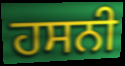
ਹਸਨੀ